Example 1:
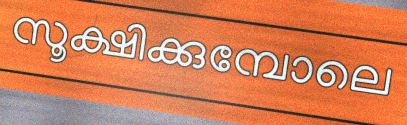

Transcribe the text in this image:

സൂക്ഷിക്കുമ്പോലെ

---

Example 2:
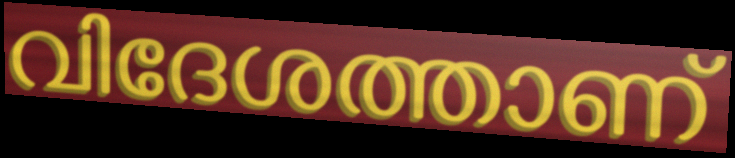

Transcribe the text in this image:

വിദേശത്താണ്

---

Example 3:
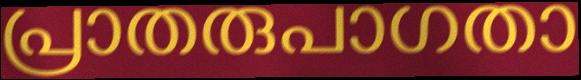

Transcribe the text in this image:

പ്രാതരുപാഗതാ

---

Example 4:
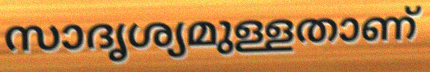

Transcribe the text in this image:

സാദൃശ്യമുള്ളതാണ്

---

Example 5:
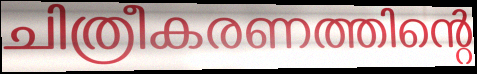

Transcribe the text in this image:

ചിത്രീകരണത്തിന്റെ